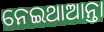
ନେଇଥାଆନ୍ତା